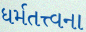
ધર્મતત્ત્વના